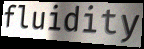
fluidity